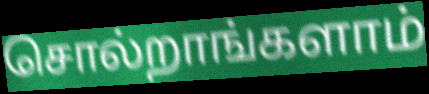
சொல்றாங்களாம்